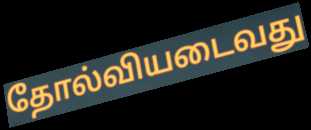
தோல்வியடைவது